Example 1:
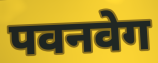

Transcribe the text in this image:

पवनवेग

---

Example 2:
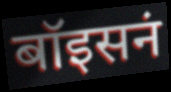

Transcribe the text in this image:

बॉइसनं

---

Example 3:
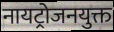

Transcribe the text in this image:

नायट्रोजनयुक्त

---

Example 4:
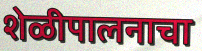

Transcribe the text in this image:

शेळीपालनाचा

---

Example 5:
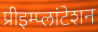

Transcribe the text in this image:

प्रीइम्प्लांटेशन